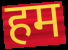
हम